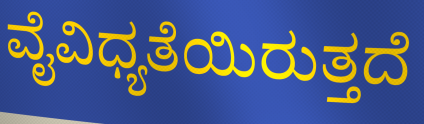
ವೈವಿಧ್ಯತೆಯಿರುತ್ತದೆ